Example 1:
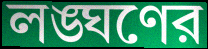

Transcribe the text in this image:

লঙ্ঘণের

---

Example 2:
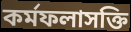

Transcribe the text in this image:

কর্মফলাসক্তি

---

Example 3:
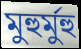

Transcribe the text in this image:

মুহুর্মুহু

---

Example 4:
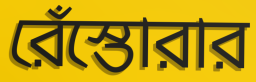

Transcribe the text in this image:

রেঁস্তোরার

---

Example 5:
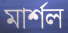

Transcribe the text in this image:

মার্শল